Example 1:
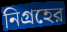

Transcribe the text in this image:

নিগ্রহের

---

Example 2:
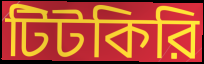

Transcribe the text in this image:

টিটকিরি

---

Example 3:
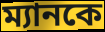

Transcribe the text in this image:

ম্যানকে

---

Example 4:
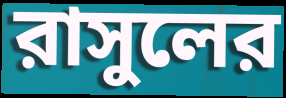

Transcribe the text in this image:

রাসুলের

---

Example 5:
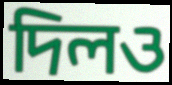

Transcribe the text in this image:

দিলও